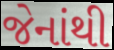
જેનાંથી